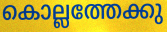
കൊല്ലത്തേക്കു